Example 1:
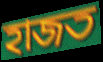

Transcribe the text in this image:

হাজত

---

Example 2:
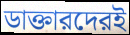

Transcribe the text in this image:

ডাক্তারদেরই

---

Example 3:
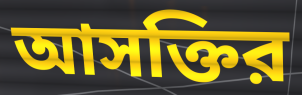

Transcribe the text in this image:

আসক্তির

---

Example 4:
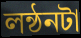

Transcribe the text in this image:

লন্ঠনটা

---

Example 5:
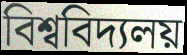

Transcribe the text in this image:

বিশ্ববিদ্যলয়